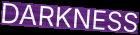
DARKNESS